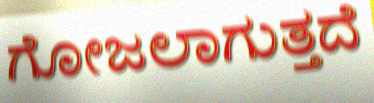
ಗೋಜಲಾಗುತ್ತದೆ